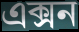
এক্সন